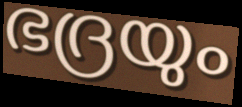
ഭദ്രയും